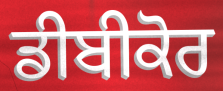
ਡੀਬੀਕੋਰ